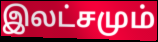
இலட்சமும்